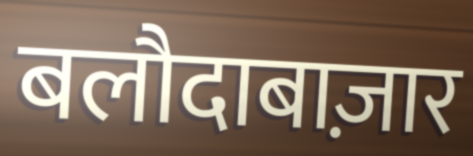
बलौदाबाज़ार